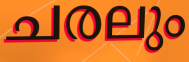
ചരലും